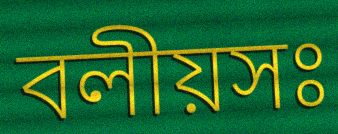
বলীয়সঃ